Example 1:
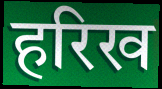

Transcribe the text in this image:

हरिख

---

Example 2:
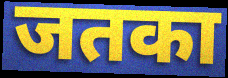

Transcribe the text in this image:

जतका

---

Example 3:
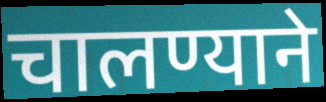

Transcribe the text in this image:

चालण्याने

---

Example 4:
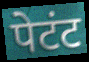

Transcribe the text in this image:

पेटंट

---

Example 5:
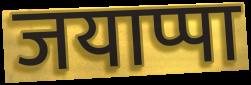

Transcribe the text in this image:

जयाप्पा